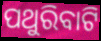
ପଥୁରିବାଟି